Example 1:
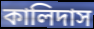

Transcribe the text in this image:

কালিদাস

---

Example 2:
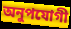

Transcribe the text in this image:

অনুপযোগী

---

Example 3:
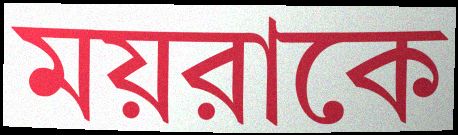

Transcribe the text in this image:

ময়রাকে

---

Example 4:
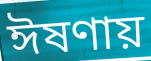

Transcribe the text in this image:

ঈষণায়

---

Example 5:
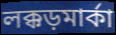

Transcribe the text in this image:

লক্কড়মার্কা